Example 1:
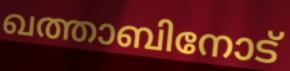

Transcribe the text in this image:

ഖത്താബിനോട്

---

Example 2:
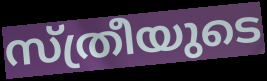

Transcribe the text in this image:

സ്ത്രീയുടെ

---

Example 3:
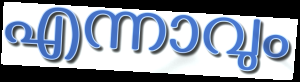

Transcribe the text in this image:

എന്നാവും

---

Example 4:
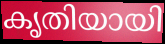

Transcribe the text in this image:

കൃതിയായി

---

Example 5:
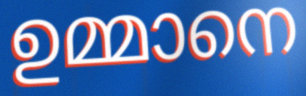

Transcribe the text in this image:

ഉമ്മാനെ